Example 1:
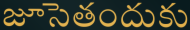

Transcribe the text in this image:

జూసెతందుకు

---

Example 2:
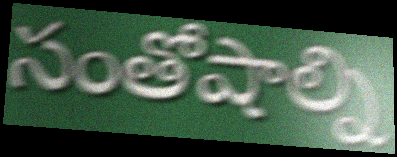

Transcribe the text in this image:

సంతోషాల్ని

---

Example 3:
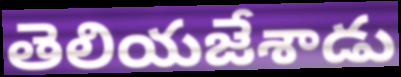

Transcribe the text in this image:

తెలియజేశాడు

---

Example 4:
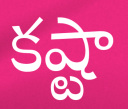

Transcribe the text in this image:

కష్టా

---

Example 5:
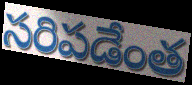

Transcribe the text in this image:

సరిపడేంత